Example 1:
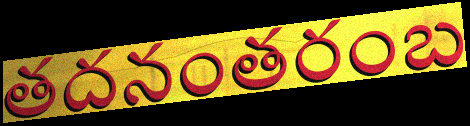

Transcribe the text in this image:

తదనంతరంబ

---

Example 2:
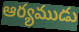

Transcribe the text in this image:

ఆర్యముడు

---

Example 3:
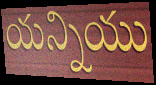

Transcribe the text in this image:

యన్నియు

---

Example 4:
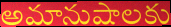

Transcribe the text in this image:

అమానుషాలకు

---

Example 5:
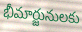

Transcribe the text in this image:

భీమార్జునులకు